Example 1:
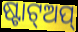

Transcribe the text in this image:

ଷ୍ଟାଟ୍ଅପ୍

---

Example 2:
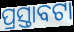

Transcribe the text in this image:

ପ୍ରସ୍ତାବଟା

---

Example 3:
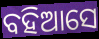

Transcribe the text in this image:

ବହିଆସେ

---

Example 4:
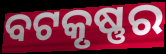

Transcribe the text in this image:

ବଟକୃଷ୍ଣର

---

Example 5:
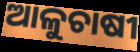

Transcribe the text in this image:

ଆଳୁଚାଷୀ